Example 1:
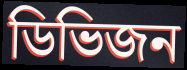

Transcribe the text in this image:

ডিভিজন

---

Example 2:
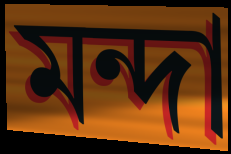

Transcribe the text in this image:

মন্দা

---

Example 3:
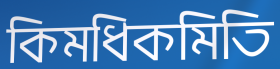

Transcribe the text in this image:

কিমধিকমিতি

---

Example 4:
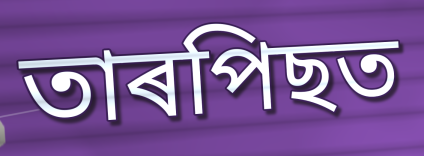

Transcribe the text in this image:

তাৰপিছত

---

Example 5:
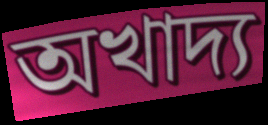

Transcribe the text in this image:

অখাদ্য